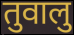
तुवालु